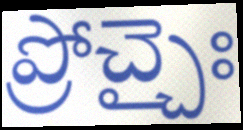
ప్రోచ్చైః